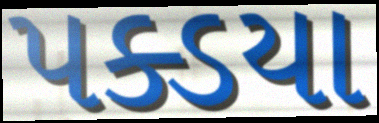
પક્ડયા